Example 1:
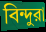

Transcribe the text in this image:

বিন্দুরা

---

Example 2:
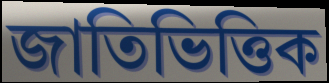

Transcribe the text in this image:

জাতিভিত্তিক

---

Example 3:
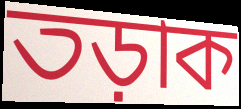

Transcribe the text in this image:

তড়াক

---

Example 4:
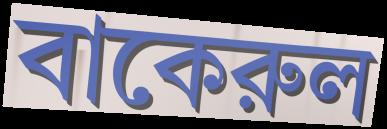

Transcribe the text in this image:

বাকেরুল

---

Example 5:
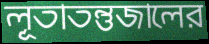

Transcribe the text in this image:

লূতাতন্তুজালের